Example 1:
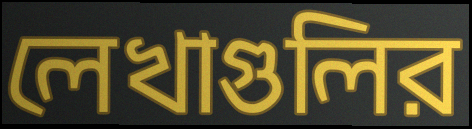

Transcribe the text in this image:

লেখাগুলির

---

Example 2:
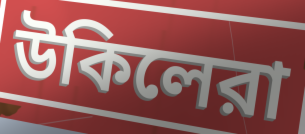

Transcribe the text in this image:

উকিলেরা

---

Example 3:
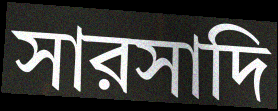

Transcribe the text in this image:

সারসাদি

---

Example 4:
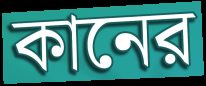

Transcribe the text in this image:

কানের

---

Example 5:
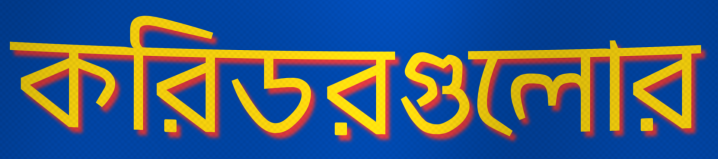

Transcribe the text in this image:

করিডরগুলোর